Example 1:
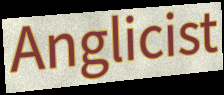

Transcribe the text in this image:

Anglicist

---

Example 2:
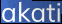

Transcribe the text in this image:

akati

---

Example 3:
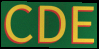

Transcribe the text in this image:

CDE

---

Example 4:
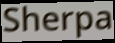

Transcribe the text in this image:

Sherpa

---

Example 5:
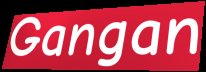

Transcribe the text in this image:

Gangan